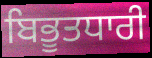
ਬਿਭੂਤਧਾਰੀ